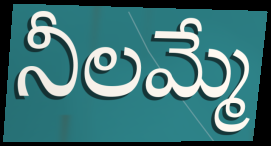
నీలమ్మే